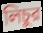
লিচুর